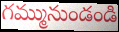
గమ్మునుండండి